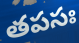
తపసః